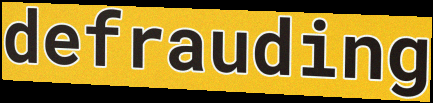
defrauding